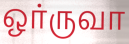
ஒர்ருவா